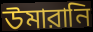
উমারানি